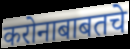
करोनाबाबतचे